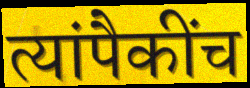
त्यांपैकींच